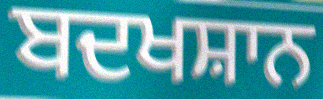
ਬਦਖਸ਼ਾਨ